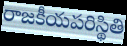
రాజకీయపరిస్థితి